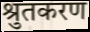
श्रुतकरण